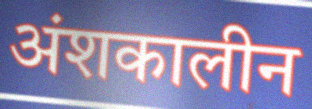
अंशकालीन